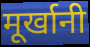
मूर्खानी